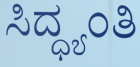
ಸಿದ್ಧ್ಯಂತಿ